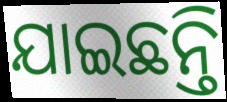
ଯାଇଛନ୍ତି